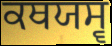
ਕਥਯਸ੍ਵ